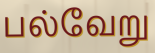
பல்வேறு